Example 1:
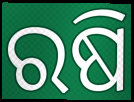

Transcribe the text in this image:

ରଷି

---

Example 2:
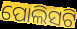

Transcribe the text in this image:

ପୋଲିସଟି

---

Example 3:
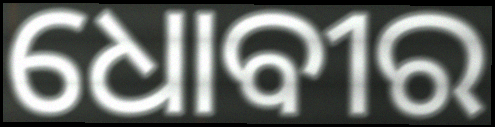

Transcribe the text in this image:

ଧୋବୀର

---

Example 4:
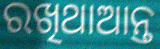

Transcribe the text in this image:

ରଖିଥାଆନ୍ତ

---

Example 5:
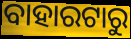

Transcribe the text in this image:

ବାହାରଟାରୁ